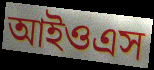
আইওএস